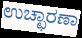
ಉಚ್ಛಾರಣಾ